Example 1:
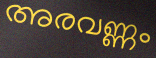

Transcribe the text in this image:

അരവണ്ണം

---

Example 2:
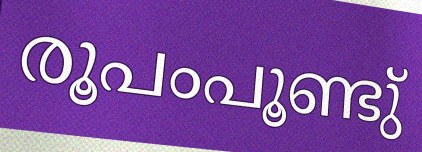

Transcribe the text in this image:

രൂപംപൂണ്ടു്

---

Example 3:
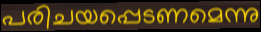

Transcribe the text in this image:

പരിചയപ്പെടണമെന്നു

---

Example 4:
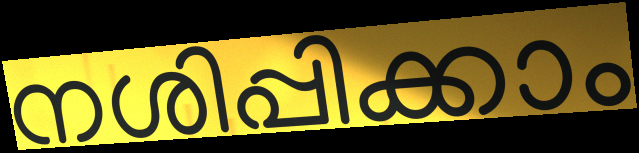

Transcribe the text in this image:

നശിപ്പിക്കാം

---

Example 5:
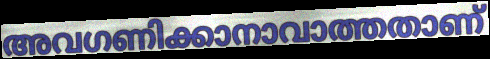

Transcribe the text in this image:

അവഗണിക്കാനാവാത്തതാണ്